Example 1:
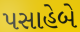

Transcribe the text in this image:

પસાહેબે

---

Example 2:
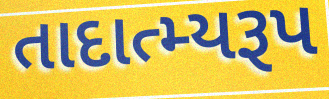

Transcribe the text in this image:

તાદાત્મ્યરૂપ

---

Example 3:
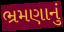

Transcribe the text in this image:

ભ્રમણાનું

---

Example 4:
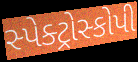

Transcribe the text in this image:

સ્પેક્ટ્રોસ્કોપી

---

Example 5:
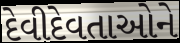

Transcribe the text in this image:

દેવીદેવતાઓને